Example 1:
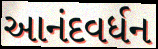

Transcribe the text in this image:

આનંદવર્ધન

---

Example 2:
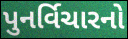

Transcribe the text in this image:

પુનર્વિચારનો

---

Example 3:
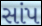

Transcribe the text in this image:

સાંપ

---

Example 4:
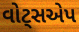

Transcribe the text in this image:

વોટ્સએપ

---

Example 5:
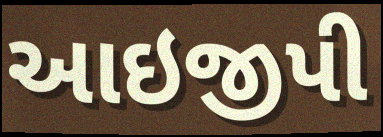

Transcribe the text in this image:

આઇજીપી